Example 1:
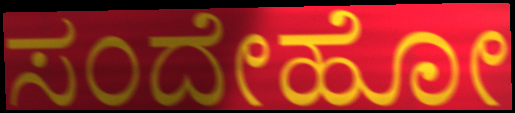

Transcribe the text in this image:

ಸಂದೇಹೋ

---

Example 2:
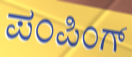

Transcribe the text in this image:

ಪಂಪಿಂಗ್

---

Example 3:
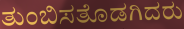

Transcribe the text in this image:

ತುಂಬಿಸತೊಡಗಿದರು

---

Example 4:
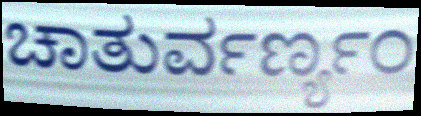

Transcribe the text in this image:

ಚಾತುರ್ವರ್ಣ್ಯಂ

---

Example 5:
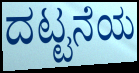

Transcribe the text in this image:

ದಟ್ಟನೆಯ